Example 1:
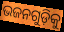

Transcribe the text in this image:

ଭଜନଗୁଡ଼ିକୁ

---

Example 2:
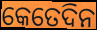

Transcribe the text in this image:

କେତେଦିନ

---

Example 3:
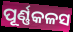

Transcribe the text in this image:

ପୂର୍ଣ୍ଣକଳସ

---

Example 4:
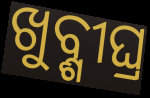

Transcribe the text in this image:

ଖୁବ୍ଶୀଘ୍ର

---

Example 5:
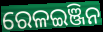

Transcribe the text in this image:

ରେଳଇଞ୍ଜିନ